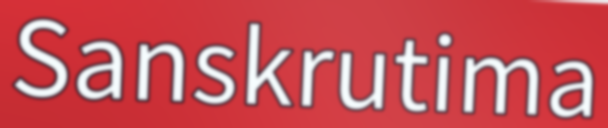
Sanskrutima